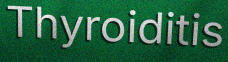
Thyroiditis